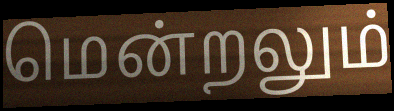
மென்றலும்